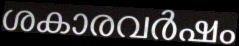
ശകാരവർഷം